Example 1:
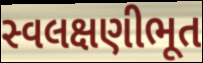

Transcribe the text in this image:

સ્વલક્ષણીભૂત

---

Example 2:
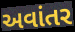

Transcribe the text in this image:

અવાંતર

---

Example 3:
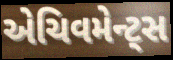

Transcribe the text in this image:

એચિવમેન્ટ્સ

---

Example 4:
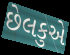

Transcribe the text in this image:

છેલકુએ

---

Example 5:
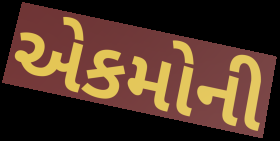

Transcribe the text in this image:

એકમોની